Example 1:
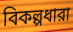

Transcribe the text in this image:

বিকল্পধারা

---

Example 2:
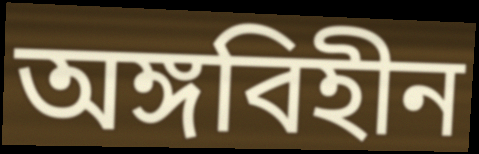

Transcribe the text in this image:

অঙ্গবিহীন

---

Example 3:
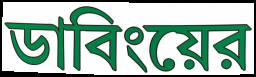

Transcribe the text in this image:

ডাবিংয়ের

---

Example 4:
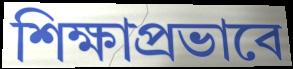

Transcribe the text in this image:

শিক্ষাপ্রভাবে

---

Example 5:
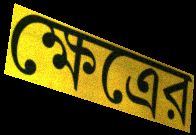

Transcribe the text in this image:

ক্ষেত্রের